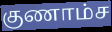
குணாம்ச